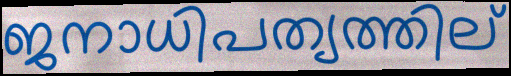
ജനാധിപത്യത്തില്